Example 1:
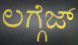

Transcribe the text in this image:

ಲಗ್ಗೆಜ್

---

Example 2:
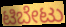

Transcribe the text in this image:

ಟಿಬೇಟು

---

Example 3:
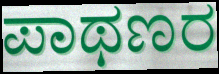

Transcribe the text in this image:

ಪಾಥಣರ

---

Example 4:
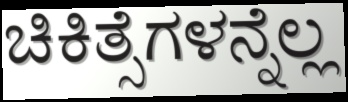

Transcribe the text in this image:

ಚಿಕಿತ್ಸೆಗಳನ್ನೆಲ್ಲ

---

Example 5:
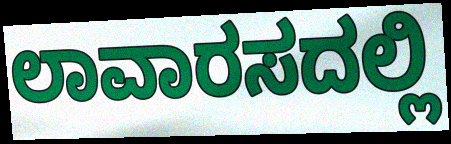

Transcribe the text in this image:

ಲಾವಾರಸದಲ್ಲಿ